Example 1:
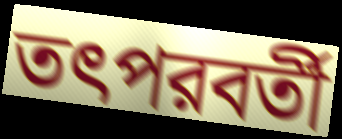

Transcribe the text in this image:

তৎপরবর্তী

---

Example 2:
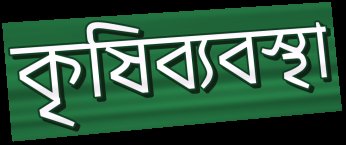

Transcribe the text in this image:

কৃষিব্যবস্থা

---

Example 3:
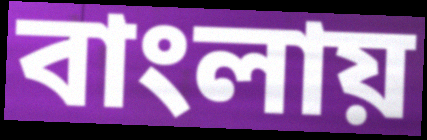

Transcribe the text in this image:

বাংলায়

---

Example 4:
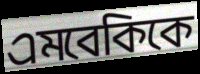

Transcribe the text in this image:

এমবেকিকে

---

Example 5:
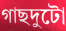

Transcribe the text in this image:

গাছদুটো